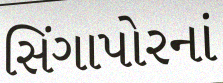
સિંગાપોરનાં